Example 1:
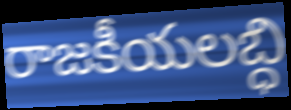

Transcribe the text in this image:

రాజకీయలబ్ధి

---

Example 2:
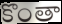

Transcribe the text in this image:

కొంతా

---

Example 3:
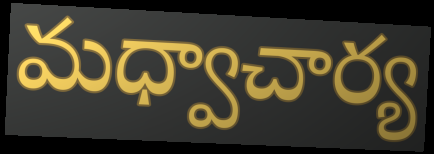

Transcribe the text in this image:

మధ్వాచార్య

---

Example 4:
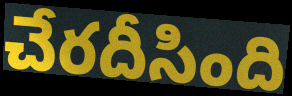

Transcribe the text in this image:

చేరదీసింది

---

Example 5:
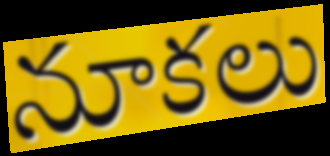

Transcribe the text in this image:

నూకలు